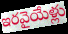
ఇరవైయేళ్లు